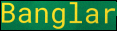
Banglar